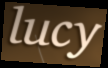
lucy